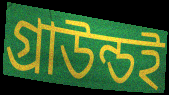
গ্রাউন্ডই